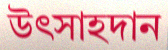
উৎসাহদান